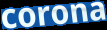
corona